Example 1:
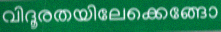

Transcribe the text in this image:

വിദൂരതയിലേക്കെങ്ങോ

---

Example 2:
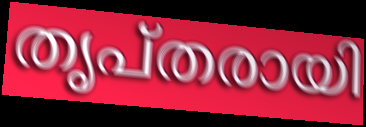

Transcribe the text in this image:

തൃപ്തരായി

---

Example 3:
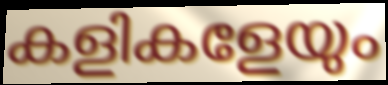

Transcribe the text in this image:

കളികളേയും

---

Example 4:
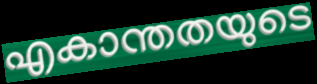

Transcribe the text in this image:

എകാന്തതയുടെ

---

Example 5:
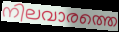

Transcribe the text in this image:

നിലവാരത്തെ